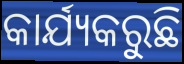
କାର୍ଯ୍ୟକରୁଛି